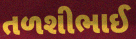
તળશીભાઈ